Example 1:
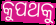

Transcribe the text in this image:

କୁପଥକୁ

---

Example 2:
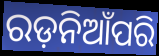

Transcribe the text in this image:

ରଡ଼ନିଆଁପରି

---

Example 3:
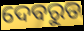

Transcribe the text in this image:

ଦେବରୁତ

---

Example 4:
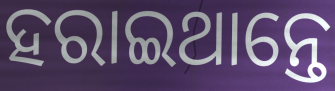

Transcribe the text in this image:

ହରାଇଥାନ୍ତେ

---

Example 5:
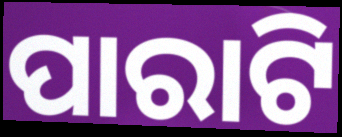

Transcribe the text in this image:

ପାରାଟି